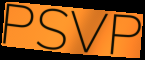
PSVP